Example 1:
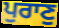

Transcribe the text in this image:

ਪੁਰਾਣੁ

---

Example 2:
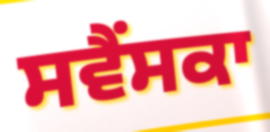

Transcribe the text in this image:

ਸਵੈਂਸਕਾ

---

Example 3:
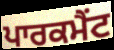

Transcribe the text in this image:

ਪਾਰਕਮੈਂਟ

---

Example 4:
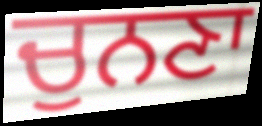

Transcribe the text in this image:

ਚੁਨਣਾ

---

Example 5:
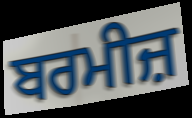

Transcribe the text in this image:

ਬਰਮੀਜ਼